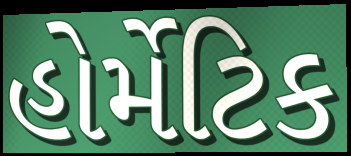
હોર્મેટિક